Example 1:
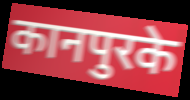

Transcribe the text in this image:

कानपुरके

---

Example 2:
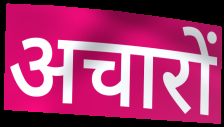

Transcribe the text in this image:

अचारों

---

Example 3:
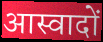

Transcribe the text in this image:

आस्वादों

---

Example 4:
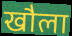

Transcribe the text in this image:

खौला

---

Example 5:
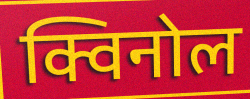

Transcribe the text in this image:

क्विनोल